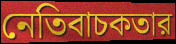
নেতিবাচকতার